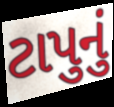
ટાપુનું